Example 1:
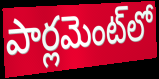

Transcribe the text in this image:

పార్లమెంట్‌లో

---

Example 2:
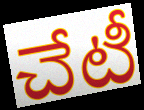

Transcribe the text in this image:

చేటీ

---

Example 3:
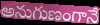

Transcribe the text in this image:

అనుగుణంగానే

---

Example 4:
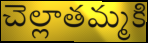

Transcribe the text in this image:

చెల్లాతమ్మకి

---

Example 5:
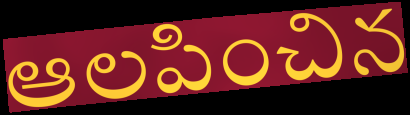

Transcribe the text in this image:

ఆలపించిన